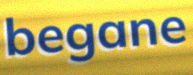
begane